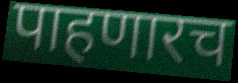
पाहणारच